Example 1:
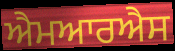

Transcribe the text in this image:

ਐਮਆਰਐਸ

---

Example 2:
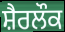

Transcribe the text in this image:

ਸ਼ੈਰਲੌਕ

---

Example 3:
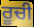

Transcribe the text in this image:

ਰੂਚੀ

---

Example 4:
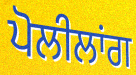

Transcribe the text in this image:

ਪੋਲੀਲਾਂਗ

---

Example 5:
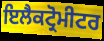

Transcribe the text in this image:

ਇਲੈਕਟ੍ਰੋਮੀਟਰ